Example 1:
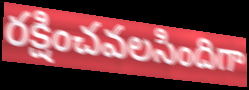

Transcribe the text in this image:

రక్షించవలసిందిగా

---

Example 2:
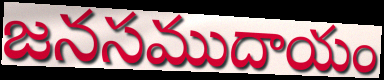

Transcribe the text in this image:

జనసముదాయం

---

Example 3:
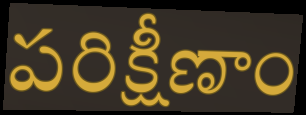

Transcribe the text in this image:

పరిక్షీణాం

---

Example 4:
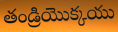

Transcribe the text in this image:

తండ్రియొక్కయు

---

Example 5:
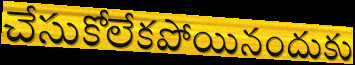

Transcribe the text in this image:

చేసుకోలేకపోయినందుకు